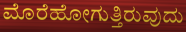
ಮೊರೆಹೋಗುತ್ತಿರುವುದು